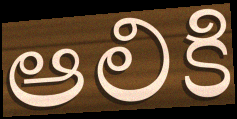
ఆలికి